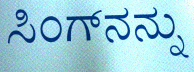
ಸಿಂಗ್‌ನನ್ನು